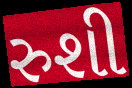
રુશી